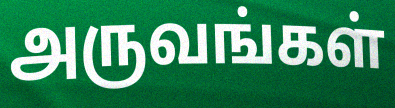
அருவங்கள்